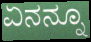
ಏನನ್ನೂ